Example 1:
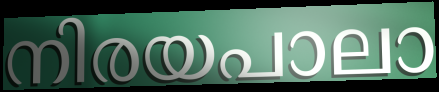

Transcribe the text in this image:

നിരയപാലാ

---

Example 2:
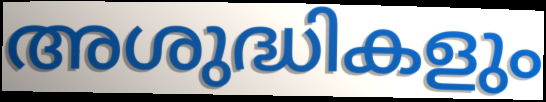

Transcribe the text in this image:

അശുദ്ധികളും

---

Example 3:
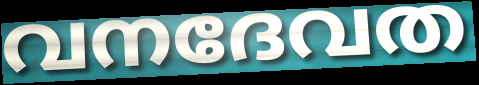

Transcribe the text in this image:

വനദേവത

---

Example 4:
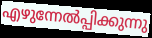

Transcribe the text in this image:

എഴുന്നേൽപ്പിക്കുന്നു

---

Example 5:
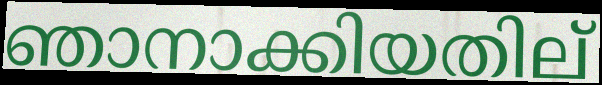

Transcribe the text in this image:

ഞാനാക്കിയതില്